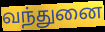
வந்துனை